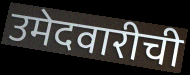
उमेदवारीची